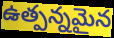
ఉత్పన్నమైన